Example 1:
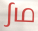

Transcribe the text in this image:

ഽഥ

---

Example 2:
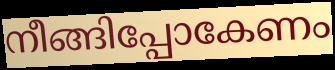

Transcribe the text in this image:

നീങ്ങിപ്പോകേണം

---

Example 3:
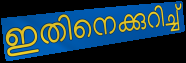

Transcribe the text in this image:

ഇതിനെക്കുറിച്ച്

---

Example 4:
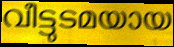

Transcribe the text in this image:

വീട്ടുടമയായ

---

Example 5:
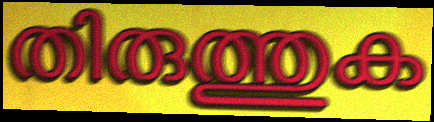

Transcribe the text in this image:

തിരുത്തുക